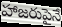
హాజరుపైనే